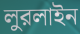
লুরলাইন